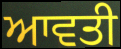
ਆਵਤੀ